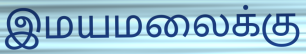
இமயமலைக்கு